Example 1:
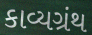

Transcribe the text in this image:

કાવ્યગ્રંથ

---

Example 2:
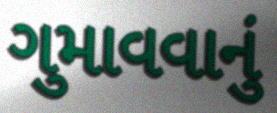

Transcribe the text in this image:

ગુમાવવાનું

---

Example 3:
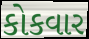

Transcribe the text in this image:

કોકવાર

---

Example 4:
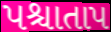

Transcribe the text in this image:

પશ્ચાતાપ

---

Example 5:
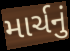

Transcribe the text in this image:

માર્ચનું